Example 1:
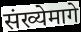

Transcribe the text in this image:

संख्येमागे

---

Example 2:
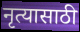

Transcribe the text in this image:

नृत्यासाठी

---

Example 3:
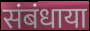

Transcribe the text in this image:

संबंधाया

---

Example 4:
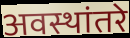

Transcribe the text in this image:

अवस्थांतरे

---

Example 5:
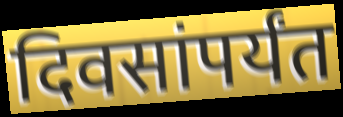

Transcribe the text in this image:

दिवसांपर्यंत